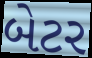
બેટર